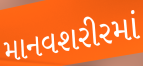
માનવશરીરમાં